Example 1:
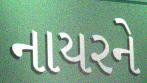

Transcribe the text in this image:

નાયરને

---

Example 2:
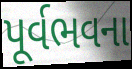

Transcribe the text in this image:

પૂર્વભવના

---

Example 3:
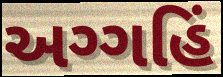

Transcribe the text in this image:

અગ્ગહિં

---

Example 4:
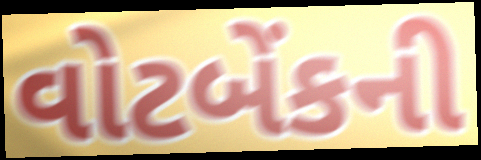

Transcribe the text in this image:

વોટબેંકની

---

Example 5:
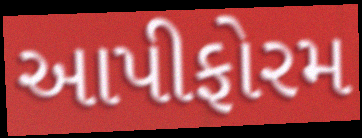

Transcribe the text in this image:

આપીફોરમ